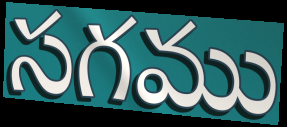
సగము